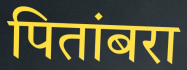
पितांबरा